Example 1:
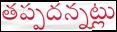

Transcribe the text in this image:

తప్పదన్నట్లు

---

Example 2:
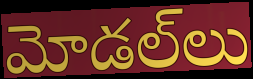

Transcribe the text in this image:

మోడల్‌లు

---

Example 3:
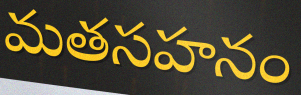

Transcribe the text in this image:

మతసహనం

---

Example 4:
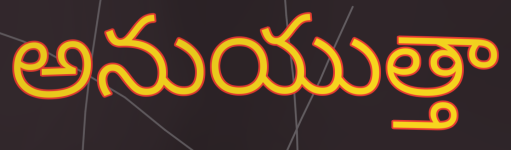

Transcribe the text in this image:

అనుయుత్తా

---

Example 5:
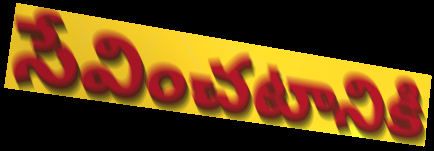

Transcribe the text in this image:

సేవించటానికి